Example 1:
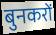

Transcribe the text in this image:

बुनकरों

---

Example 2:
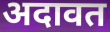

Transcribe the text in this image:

अदावत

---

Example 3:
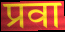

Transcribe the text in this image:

प्रवा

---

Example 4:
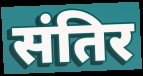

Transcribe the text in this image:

संतिर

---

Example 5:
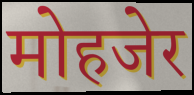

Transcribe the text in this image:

मोहजेर